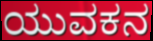
ಯುವಕನ